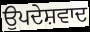
ਉਪਦੇਸ਼ਵਾਦ